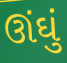
ઊંઘું